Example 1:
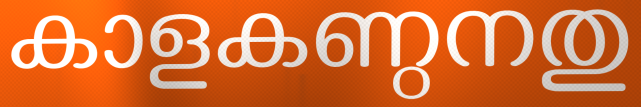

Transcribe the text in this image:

കാളകണ്ഠനതു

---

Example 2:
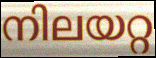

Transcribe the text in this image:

നിലയറ്റ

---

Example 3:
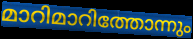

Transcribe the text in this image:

മാറിമാറിത്തോന്നും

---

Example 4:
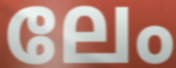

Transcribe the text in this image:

ലേം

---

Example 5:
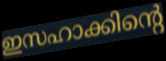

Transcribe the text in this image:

ഇസഹാക്കിന്റെ